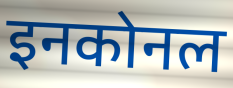
इनकोनल